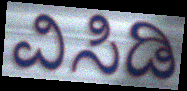
ವಿಸಿಡಿ